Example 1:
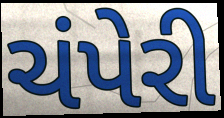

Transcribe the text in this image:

ચંપેરી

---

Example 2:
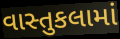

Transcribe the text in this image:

વાસ્તુકલામાં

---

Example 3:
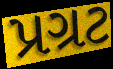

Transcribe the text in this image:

પ્રગ્રટ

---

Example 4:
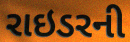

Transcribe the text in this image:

રાઇડરની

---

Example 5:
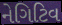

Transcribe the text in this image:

નેગિટિવ